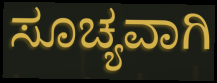
ಸೂಚ್ಯವಾಗಿ